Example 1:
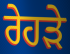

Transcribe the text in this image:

ਰੇਹੜੇ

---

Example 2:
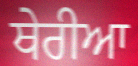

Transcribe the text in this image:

ਥੇਰੀਆ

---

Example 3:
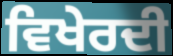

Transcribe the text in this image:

ਵਿਖੇਰਦੀ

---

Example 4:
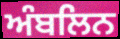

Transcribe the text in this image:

ਅੰਬਲਿਨ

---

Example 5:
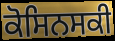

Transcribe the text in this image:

ਕੋਸਿਨਸਕੀ